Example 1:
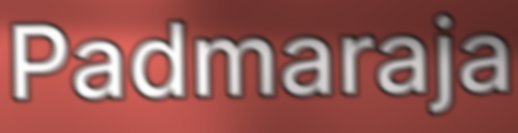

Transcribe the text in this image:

Padmaraja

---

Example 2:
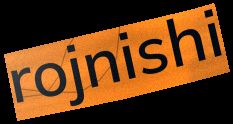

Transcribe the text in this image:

rojnishi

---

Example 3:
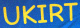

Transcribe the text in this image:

UKIRT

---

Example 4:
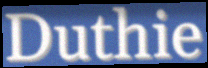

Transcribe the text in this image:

Duthie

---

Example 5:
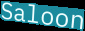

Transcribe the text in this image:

Saloon